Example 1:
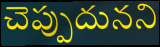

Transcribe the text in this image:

చెప్పుదునని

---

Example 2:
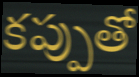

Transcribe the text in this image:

కప్పుతో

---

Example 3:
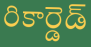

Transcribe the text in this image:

రికార్డెడ్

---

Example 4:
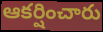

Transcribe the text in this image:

ఆకర్షించారు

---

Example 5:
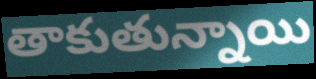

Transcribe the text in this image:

తాకుతున్నాయి